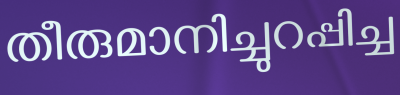
തീരുമാനിച്ചുറപ്പിച്ച